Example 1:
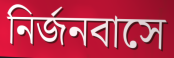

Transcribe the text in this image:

নির্জনবাসে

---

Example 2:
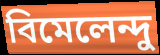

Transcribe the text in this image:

বিমেলেন্দু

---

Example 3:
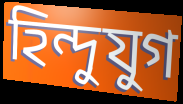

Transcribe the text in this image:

হিন্দুযুগ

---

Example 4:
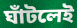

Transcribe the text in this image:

ঘাঁটলেই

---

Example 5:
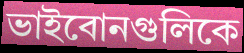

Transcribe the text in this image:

ভাইবোনগুলিকে